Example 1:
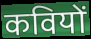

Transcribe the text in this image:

कवियों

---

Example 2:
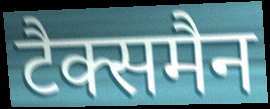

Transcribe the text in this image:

टैक्समैन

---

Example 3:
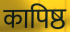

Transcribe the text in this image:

कापिष्ठ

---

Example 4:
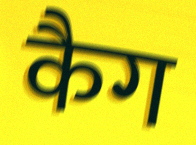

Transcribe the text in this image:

कैग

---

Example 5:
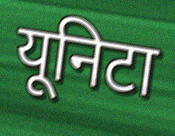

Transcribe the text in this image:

यूनिटा